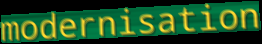
modernisation